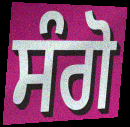
ਸੰਗੋ